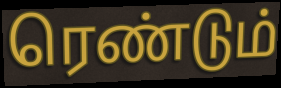
ரெண்டும்